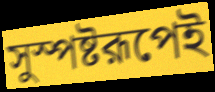
সুস্পষ্টরূপেই